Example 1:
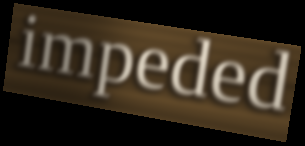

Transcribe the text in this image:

impeded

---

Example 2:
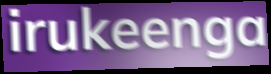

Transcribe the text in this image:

irukeenga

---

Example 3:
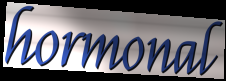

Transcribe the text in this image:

hormonal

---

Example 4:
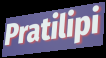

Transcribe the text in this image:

Pratilipi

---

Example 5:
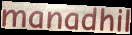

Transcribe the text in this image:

manadhil